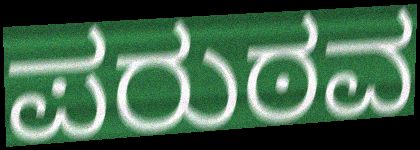
ಪರುಠವ